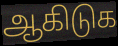
ஆகிடுக